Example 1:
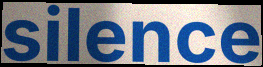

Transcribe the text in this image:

silence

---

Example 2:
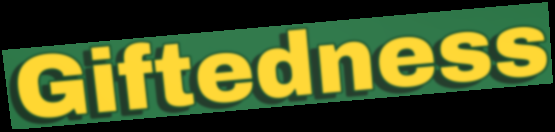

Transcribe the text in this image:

Giftedness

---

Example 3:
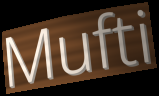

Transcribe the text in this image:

Mufti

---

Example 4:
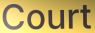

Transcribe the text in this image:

Court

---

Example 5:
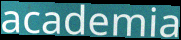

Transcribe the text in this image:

academia